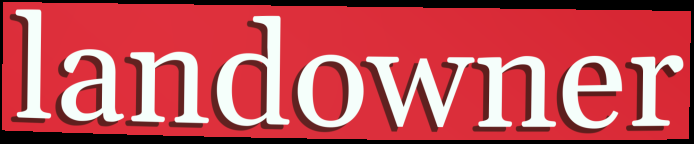
landowner